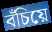
বঁচিয়ে